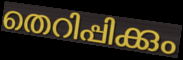
തെറിപ്പിക്കും